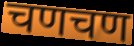
चणचण